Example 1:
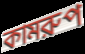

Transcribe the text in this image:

কামৰুপ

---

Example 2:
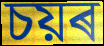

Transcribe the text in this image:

চয়ৰ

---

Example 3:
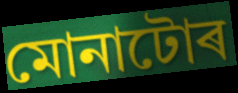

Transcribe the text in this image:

মোনাটোৰ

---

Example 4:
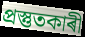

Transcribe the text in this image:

প্ৰস্তুতকাৰী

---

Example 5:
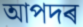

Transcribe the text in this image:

আপদৰ